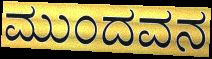
ಮುಂದವನ